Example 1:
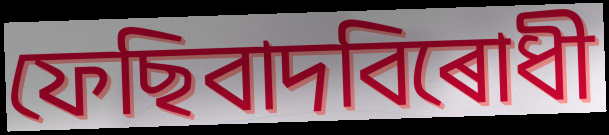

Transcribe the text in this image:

ফেছিবাদবিৰোধী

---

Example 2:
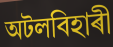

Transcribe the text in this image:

অটলবিহাৰী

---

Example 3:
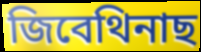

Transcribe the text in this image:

জিবেথিনাছ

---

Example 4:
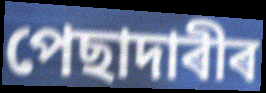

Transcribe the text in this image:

পেছাদাৰীৰ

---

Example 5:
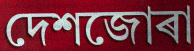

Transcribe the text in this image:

দেশজোৰা